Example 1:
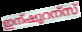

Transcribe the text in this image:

ഇന്ഷുറന്സ്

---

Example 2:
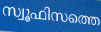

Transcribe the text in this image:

സ്വൂഫിസത്തെ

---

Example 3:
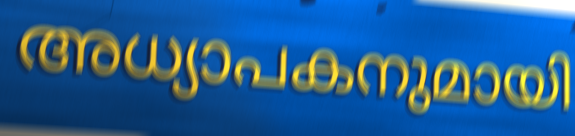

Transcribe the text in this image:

അധ്യാപകനുമായി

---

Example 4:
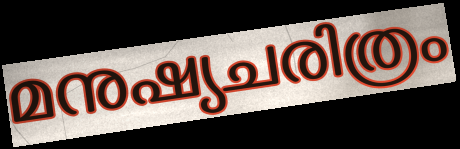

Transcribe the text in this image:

മനുഷ്യചരിത്രം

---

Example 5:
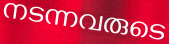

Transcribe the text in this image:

നടന്നവരുടെ